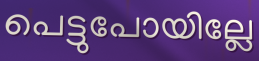
പെട്ടുപോയില്ലേ